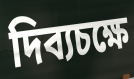
দিব্যচক্ষে